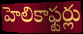
హెలికాఫ్టర్లు